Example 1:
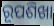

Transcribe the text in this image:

ରୂପଶିଖା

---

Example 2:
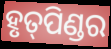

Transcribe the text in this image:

ହୃତ୍‍ପିଣ୍ଡର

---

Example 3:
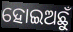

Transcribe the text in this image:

ହୋଇଅଛୁଁ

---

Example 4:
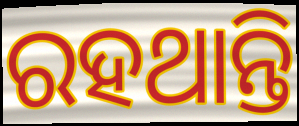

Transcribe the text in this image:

ରହଥାନ୍ତି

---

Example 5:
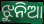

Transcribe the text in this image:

ଝୁନିଆ